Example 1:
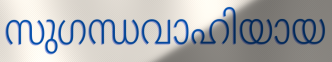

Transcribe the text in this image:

സുഗന്ധവാഹിയായ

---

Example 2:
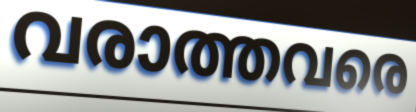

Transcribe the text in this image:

വരാത്തവരെ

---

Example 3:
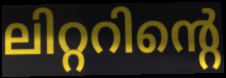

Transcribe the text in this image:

ലിറ്ററിന്റെ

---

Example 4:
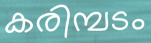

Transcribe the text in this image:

കരിമ്പടം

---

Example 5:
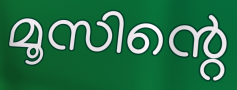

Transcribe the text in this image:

മൂസിന്റെ